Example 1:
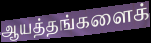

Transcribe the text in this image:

ஆயத்தங்களைக்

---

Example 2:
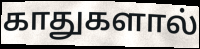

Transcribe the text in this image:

காதுகளால்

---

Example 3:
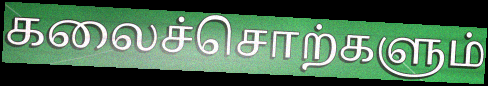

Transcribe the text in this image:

கலைச்சொற்களும்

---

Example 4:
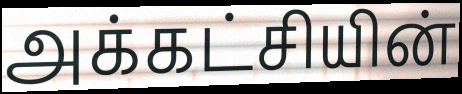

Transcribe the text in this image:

அக்கட்சியின்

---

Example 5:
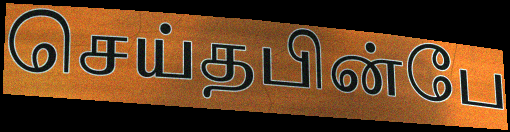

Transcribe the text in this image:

செய்தபின்பே